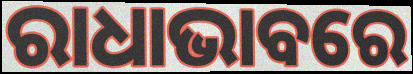
ରାଧାଭାବରେ